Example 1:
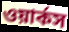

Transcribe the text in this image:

ওয়ার্কস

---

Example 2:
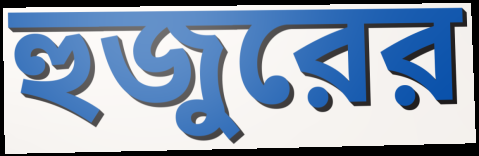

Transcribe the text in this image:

হুজুরের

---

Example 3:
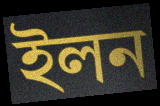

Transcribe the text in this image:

ইলন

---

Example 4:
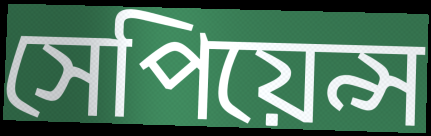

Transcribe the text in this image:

সেপিয়েন্স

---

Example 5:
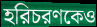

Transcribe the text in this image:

হরিচরণকেও